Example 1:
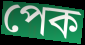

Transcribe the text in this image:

পেক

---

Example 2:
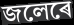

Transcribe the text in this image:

জলেৰে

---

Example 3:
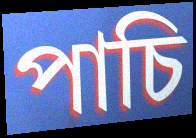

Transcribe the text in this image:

পাচি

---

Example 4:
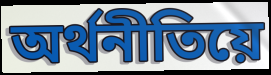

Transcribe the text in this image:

অৰ্থনীতিয়ে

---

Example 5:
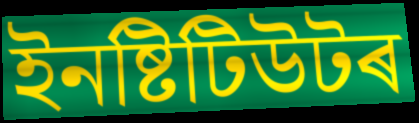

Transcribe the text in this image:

ইনষ্টিটিউটৰ